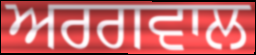
ਅਰਗਵਾਲ